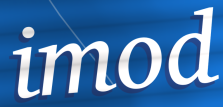
imod